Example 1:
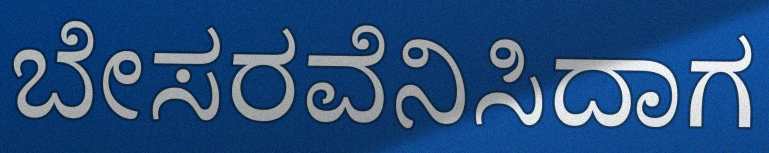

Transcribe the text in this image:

ಬೇಸರವೆನಿಸಿದಾಗ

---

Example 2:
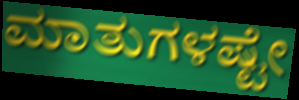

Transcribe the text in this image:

ಮಾತುಗಳಷ್ಟೇ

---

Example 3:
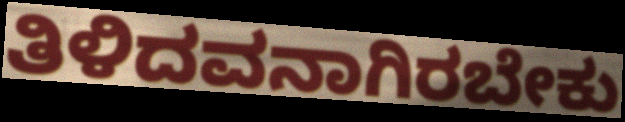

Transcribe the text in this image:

ತಿಳಿದವನಾಗಿರಬೇಕು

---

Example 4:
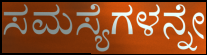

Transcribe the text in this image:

ಸಮಸ್ಯೆಗಳನ್ನೇ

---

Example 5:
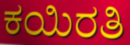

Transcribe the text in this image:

ಕಯಿರತಿ